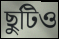
ছুটিও